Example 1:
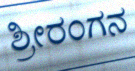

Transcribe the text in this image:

ಶ್ರೀರಂಗನ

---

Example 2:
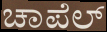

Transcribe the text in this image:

ಚಾಪೆಲ್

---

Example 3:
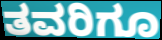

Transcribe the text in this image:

ತವರಿಗೂ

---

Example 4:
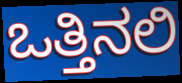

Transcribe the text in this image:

ಒತ್ತಿನಲಿ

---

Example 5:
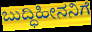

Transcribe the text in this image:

ಬುದ್ಧಿಹೀನನಿಗೆ